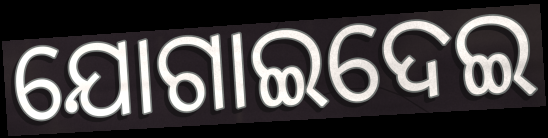
ଯୋଗାଇଦେଇ